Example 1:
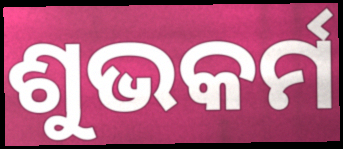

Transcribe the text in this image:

ଶୁଭକର୍ମ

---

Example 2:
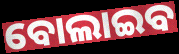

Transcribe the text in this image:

ବୋଲାଇବ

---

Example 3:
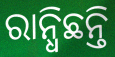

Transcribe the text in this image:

ରାନ୍ଧିଛନ୍ତି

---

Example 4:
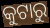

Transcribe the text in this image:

କୁଟାରୁ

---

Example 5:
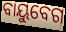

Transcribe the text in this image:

ବାୟୁବେଗ